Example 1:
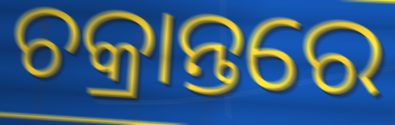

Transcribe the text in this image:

ଚକ୍ରାନ୍ତରେ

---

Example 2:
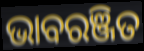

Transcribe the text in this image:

ଭାବରଞ୍ଜିତ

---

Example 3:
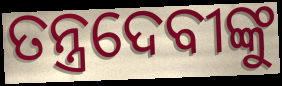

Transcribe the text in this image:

ତନ୍ତ୍ରଦେବୀଙ୍କୁ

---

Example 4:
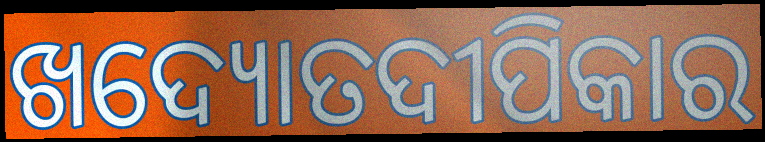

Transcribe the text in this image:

ଖଦ୍ୟୋତଦୀପିକାର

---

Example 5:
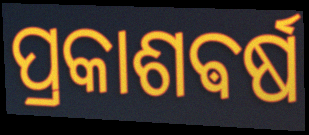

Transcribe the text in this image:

ପ୍ରକାଶଵର୍ଷ